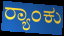
ರ್‍ಯಾಂಕು